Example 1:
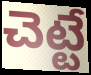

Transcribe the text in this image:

చెట్టే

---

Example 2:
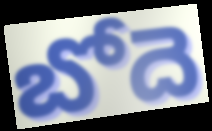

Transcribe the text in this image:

బోదె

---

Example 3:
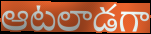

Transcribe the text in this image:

ఆటలాడగా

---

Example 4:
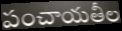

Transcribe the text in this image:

పంచాయతీల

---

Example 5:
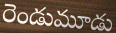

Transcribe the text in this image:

రెండుమూడు